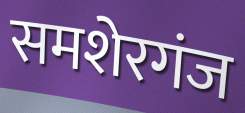
समशेरगंज